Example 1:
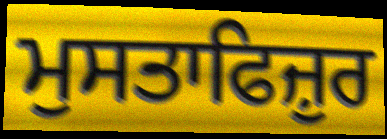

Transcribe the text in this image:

ਮੁਸਤਾਫਿਜ਼ੁਰ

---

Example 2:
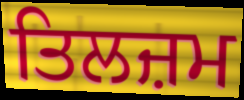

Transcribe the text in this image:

ਤਿਲਜ਼ਮ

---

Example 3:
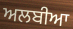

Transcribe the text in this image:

ਅਲਬੀਆ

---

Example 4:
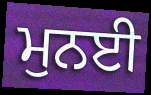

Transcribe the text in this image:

ਮੁਨਈ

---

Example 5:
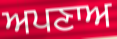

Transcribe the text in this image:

ਅਪਣਾਅ